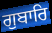
ਗੁਬਾਰਿ